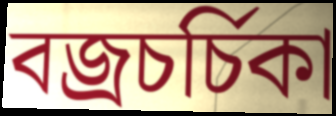
বজ্রচর্চিকা